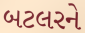
બટલરને